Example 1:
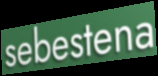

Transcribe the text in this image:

sebestena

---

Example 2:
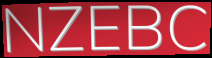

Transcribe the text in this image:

NZEBC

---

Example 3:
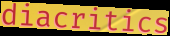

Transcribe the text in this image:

diacritics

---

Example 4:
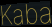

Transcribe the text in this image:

Kaba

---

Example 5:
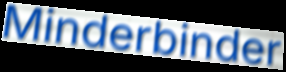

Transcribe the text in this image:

Minderbinder